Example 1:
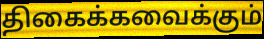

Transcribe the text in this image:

திகைக்கவைக்கும்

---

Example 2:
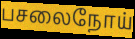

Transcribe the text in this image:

பசலைநோய்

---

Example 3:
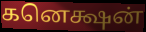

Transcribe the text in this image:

கனெக்ஷன்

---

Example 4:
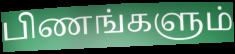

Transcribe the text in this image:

பிணங்களும்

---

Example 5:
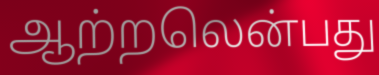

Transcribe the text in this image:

ஆற்றலென்பது